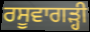
ਰਸੂਵਾਗੜ੍ਹੀ